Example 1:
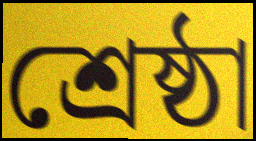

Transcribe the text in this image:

শ্রেষ্ঠা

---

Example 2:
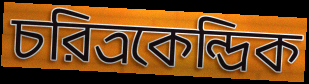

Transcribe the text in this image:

চরিত্রকেন্দ্রিক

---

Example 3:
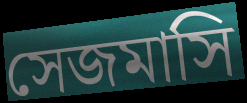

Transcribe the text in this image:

সেজমাসি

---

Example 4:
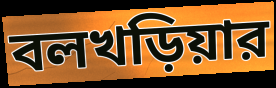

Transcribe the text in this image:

বলখড়িয়ার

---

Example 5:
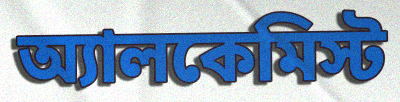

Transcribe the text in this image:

অ্যালকেমিস্ট